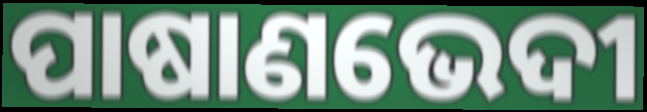
ପାଷାଣଭେଦୀ